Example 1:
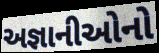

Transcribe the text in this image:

અજ્ઞાનીઓનો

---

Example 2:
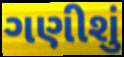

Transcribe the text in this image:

ગણીશું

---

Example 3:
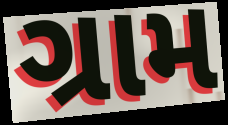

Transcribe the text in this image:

ગ્રામ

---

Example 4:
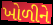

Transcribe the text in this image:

ખોળીને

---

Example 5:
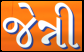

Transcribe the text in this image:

જેન્ની